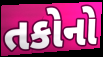
તકોનો